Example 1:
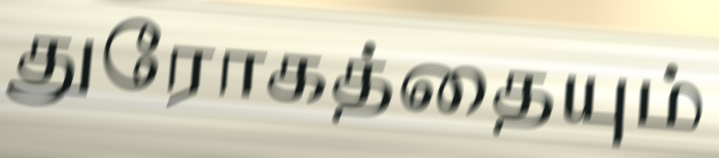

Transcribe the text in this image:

துரோகத்தையும்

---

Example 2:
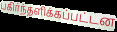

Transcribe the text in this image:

பகிர்ந்தளிக்கப்பட்டன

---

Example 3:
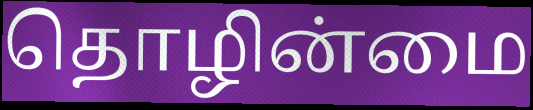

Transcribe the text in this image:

தொழின்மை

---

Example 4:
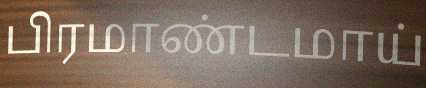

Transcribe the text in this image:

பிரமாண்டமாய்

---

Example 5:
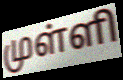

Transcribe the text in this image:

முள்ளி